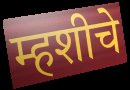
म्हशीचे